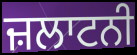
ਜ਼ਲਾਟਨੀ